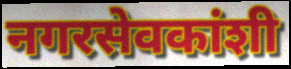
नगरसेवकांशी